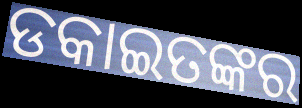
ଡକାଇତଙ୍କର